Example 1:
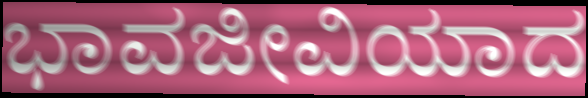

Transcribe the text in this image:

ಭಾವಜೀವಿಯಾದ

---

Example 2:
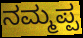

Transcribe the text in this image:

ನಮ್ಮಪ್ಪ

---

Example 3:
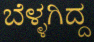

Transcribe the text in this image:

ಬೆಳ್ಳಗಿದ್ದ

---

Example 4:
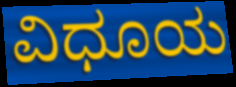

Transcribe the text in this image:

ವಿಧೂಯ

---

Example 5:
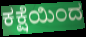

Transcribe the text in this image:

ಕಕ್ಷೆಯಿಂದ